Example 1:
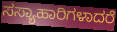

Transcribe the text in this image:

ಸಸ್ಯಾಹಾರಿಗಳಾದರೆ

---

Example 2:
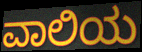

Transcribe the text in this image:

ವಾಲಿಯ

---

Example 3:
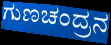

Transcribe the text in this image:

ಗುಣಚಂದ್ರನ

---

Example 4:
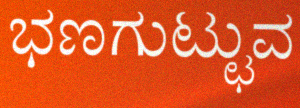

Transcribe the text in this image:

ಭಣಗುಟ್ಟುವ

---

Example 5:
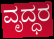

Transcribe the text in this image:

ವೃದ್ಧರ